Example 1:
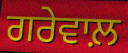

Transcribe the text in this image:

ਗਰੇਵਾਲ਼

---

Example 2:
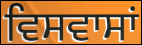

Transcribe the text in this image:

ਵਿਸਵਾਸਾਂ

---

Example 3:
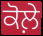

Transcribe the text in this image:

ਕੋਲ਼ੇ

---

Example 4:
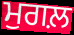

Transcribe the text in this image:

ਮੁਗਲ਼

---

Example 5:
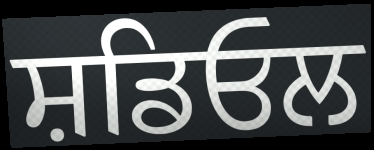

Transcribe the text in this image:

ਸ਼ਡਿਓਲ